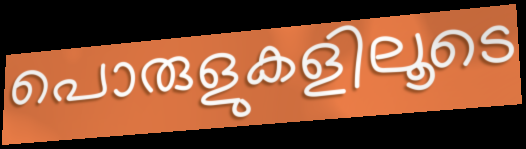
പൊരുളുകളിലൂടെ